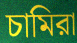
চামিরা